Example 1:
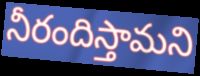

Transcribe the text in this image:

నీరందిస్తామని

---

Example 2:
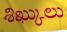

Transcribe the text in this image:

శిఖ్కులు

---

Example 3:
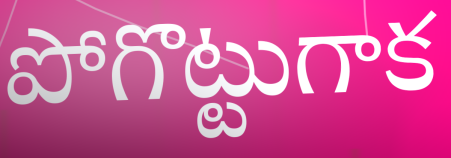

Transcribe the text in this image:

పోగొట్టుగాక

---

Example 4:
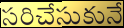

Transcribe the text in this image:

సరిచేసుకునే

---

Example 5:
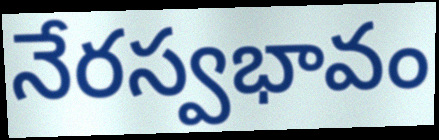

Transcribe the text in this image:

నేరస్వభావం